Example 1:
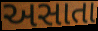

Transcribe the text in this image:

અસાતા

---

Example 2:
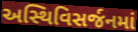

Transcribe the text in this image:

અસ્થિવિસર્જનમાં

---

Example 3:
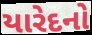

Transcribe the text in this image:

યારેદનો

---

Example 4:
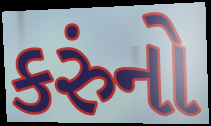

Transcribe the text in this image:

કરુંનો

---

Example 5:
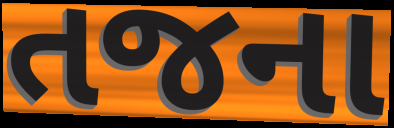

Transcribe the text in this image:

તજના